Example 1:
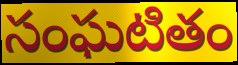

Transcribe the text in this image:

సంఘటితం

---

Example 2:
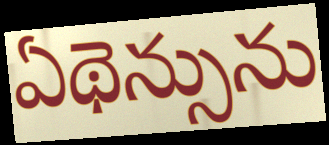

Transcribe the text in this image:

ఏథెన్సును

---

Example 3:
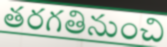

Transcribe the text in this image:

తరగతినుంచి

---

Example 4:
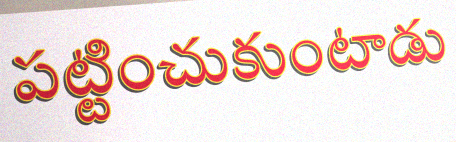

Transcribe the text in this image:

పట్టించుకుంటాడు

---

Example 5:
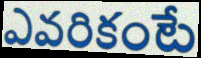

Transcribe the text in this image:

ఎవరికంటే